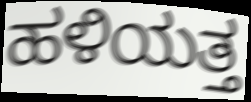
ಹಳಿಯತ್ತ